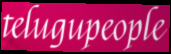
telugupeople